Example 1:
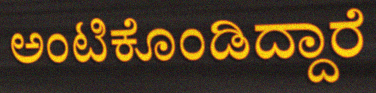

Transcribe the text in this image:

ಅಂಟಿಕೊಂಡಿದ್ದಾರೆ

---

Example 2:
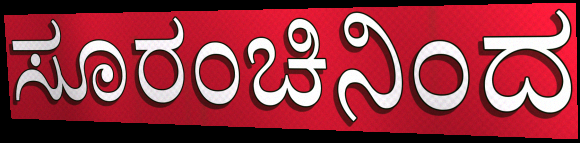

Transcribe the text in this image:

ಸೂರಂಚಿನಿಂದ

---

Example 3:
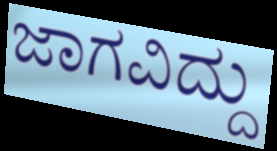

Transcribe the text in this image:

ಜಾಗವಿದ್ದು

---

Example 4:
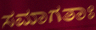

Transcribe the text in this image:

ಸಮಾಗತಾಃ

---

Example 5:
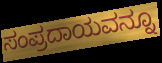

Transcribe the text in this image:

ಸಂಪ್ರದಾಯವನ್ನೂ